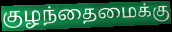
குழந்தைமைக்கு